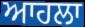
ਆਹਲਾ